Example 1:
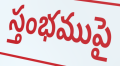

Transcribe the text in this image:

స్తంభముపై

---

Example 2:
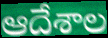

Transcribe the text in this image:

ఆదేశాల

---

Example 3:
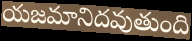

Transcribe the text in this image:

యజమానిదవుతుంది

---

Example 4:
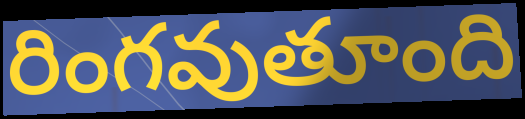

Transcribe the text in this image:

రింగవుతూంది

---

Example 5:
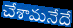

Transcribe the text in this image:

చేశామనేదే